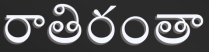
రాతిరంతా